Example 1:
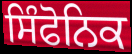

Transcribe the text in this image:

ਸਿੰਫੋਨਿਕ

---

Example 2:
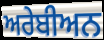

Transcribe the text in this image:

ਅਰੇਬੀਅਨ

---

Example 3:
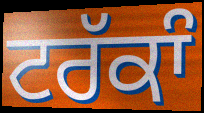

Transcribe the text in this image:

ਟਰੱਕਾੰ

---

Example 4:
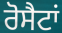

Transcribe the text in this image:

ਰੋਸੈਟਾਂ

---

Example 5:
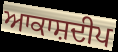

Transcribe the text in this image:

ਆਕਾਸ਼ਦੀਪ